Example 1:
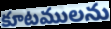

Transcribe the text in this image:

కూటములను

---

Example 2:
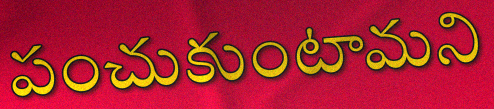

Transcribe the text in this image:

పంచుకుంటామని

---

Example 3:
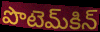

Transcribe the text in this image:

పొటెమ్‌కిన్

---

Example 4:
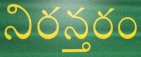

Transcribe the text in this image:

నిరన్తరం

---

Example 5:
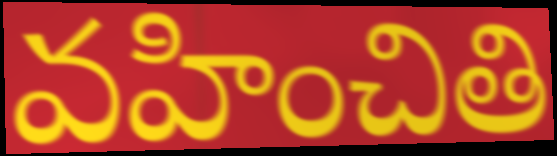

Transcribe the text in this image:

వహించితి